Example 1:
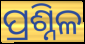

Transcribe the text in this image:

ପ୍ରଶ୍ନିଳ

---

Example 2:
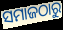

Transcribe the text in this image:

ସମାଜଠାରୁ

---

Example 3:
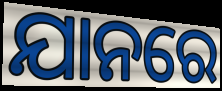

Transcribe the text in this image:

ଯାନରେ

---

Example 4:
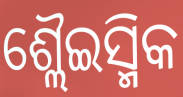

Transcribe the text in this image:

ଶ୍ଲୈଇସ୍ମିକ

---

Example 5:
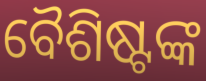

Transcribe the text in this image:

ବୈଶିଷ୍ଟଙ୍କ